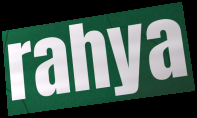
rahya